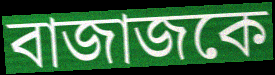
বাজাজকে